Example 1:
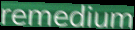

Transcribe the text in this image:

remedium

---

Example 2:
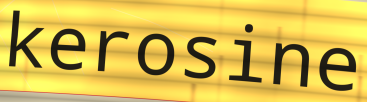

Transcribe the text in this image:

kerosine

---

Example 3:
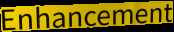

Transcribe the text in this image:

Enhancement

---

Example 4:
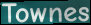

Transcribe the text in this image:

Townes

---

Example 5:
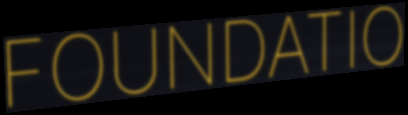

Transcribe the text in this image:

FOUNDATIO